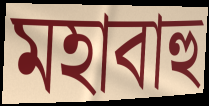
মহাবাহু